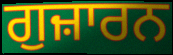
ਗੁਜ਼ਾਰਨ